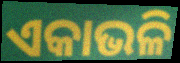
ଏକାଭଳି